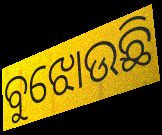
ବୁଝୋଉଛି